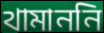
থামাননি